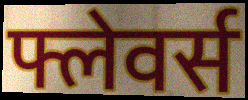
फ्लेवर्स